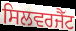
ਸਿਲਵਰਜੈੱਟ